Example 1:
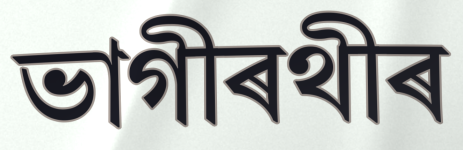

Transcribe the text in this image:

ভাগীৰথীৰ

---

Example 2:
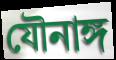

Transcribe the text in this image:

যৌনাঙ্গ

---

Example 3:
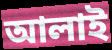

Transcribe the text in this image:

আলাই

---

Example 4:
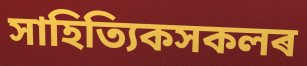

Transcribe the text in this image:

সাহিত্যিকসকলৰ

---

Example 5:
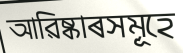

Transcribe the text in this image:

আৱিষ্কাৰসমূহে